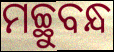
ମଚ୍ଛୁବନ୍ଧ